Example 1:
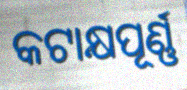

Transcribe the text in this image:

କଟାକ୍ଷପୂର୍ଣ୍ଣ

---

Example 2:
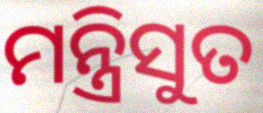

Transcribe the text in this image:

ମନ୍ତ୍ରିସୁତ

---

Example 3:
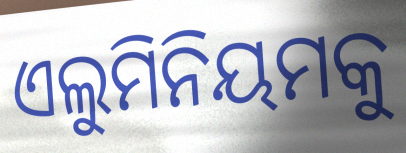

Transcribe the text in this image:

ଏଲୁମିନିୟମକୁ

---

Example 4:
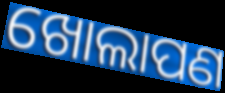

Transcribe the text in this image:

ଖୋଲାପଣ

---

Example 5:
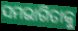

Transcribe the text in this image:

ସମଭାଗିତାକୁ